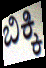
ಬಿಕ್ಕಿ